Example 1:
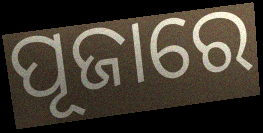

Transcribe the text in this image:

ପୂଜାରେ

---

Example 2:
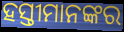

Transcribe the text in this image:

ହସ୍ତୀମାନଙ୍କର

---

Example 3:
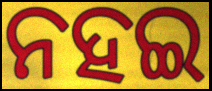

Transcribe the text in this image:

ନହଇ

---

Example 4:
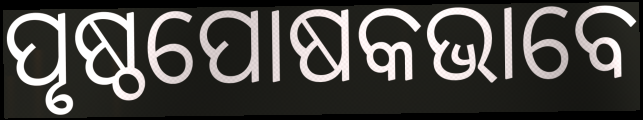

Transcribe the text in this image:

ପୃଷ୍ଠପୋଷକଭାବେ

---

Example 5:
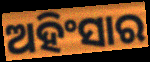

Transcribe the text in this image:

ଅହିଂସାର